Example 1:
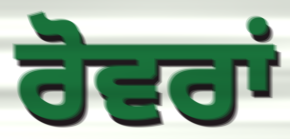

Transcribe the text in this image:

ਰੋਵਰਾਂ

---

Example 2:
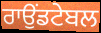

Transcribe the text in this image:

ਰਾਉਂਡਟੇਬਲ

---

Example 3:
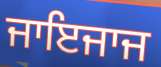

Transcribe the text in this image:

ਜਾਇਜਾਜ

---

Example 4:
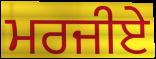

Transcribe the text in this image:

ਮਰਜੀਏ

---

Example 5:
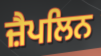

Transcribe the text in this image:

ਜ਼ੈਪਲਿਨ